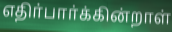
எதிர்பார்க்கின்றாள்